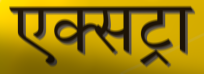
एक्सट्रा